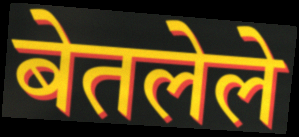
बेतलेले